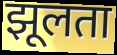
झूलता